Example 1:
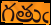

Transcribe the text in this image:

గతుఁ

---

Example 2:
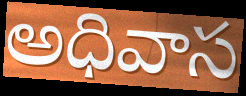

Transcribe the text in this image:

అధివాస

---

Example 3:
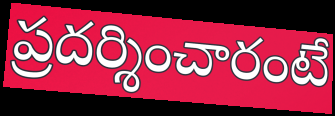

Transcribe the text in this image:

ప్రదర్శించారంటే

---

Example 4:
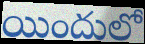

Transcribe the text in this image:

యిందులో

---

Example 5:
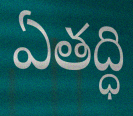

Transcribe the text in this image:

ఏతద్ధి